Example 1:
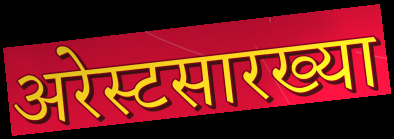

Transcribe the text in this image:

अरेस्टसारख्या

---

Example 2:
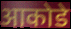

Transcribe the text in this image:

आकोडे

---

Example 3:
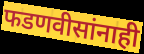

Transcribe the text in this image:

फडणवीसांनाही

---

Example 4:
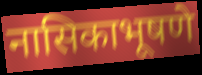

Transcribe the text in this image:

नासिकाभूषणे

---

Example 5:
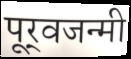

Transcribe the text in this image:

पूर्वजन्मी